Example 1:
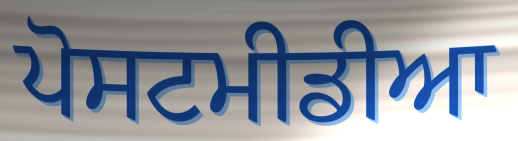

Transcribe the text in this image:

ਪੋਸਟਮੀਡੀਆ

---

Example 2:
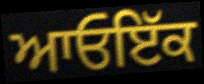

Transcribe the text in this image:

ਆਓਇੱਕ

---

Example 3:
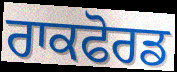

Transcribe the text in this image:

ਰਾਕਫੋਰਡ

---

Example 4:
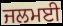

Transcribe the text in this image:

ਜਲਮਈ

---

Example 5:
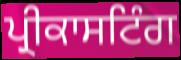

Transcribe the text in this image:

ਪ੍ਰੀਕਾਸਟਿੰਗ